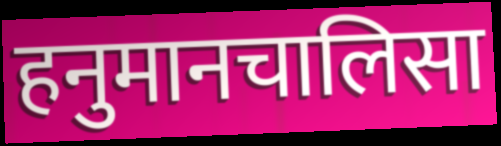
हनुमानचालिसा